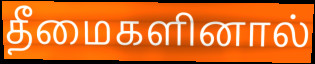
தீமைகளினால்